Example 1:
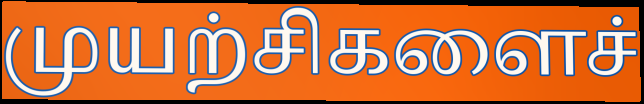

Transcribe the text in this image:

முயற்சிகளைச்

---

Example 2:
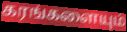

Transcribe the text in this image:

கரங்களையும்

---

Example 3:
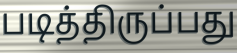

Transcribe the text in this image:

படித்திருப்பது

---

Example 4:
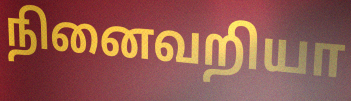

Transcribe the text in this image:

நினைவறியா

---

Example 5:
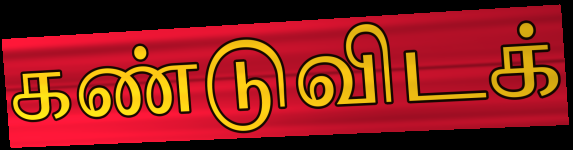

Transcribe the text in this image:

கண்டுவிடக்